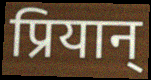
प्रियान्